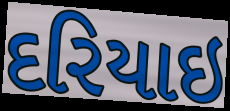
દરિયાઇ